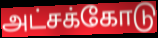
அட்சக்கோடு